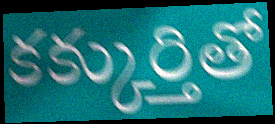
కక్కుర్తితో